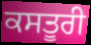
ਕਸਤੂਰੀ